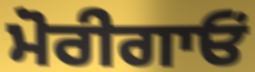
ਮੋਰੀਗਾਓਂ